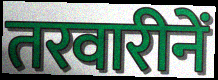
तरवारीनें